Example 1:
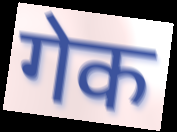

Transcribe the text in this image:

गेक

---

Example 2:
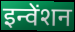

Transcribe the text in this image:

इन्वेंशन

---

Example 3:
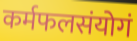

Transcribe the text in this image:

कर्मफलसंयोगं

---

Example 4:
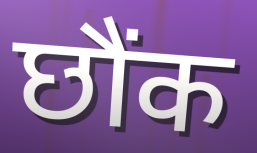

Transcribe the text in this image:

छौंक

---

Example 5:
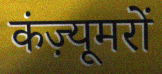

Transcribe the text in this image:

कंज़्यूमरों